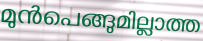
മുൻപെങ്ങുമില്ലാത്ത